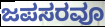
ಜಪಸರವೂ